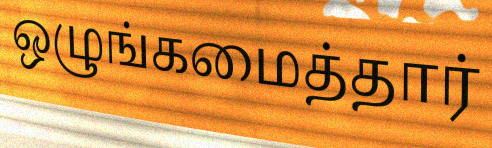
ஒழுங்கமைத்தார்